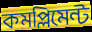
কমপ্লিমেন্ট